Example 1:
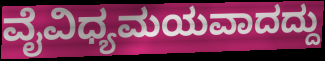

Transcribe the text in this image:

ವೈವಿಧ್ಯಮಯವಾದದ್ದು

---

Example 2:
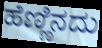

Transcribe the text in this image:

ಹೆಣ್ಣಿನದು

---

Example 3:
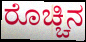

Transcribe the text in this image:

ರೊಚ್ಚಿನ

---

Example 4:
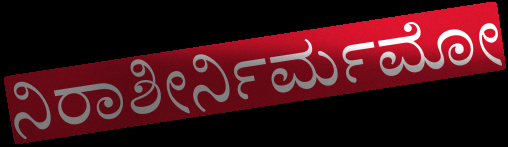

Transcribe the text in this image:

ನಿರಾಶೀರ್ನಿರ್ಮಮೋ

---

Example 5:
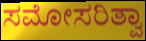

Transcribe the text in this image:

ಸಮೋಸರಿತ್ವಾ